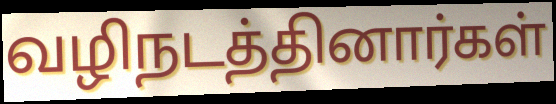
வழிநடத்தினார்கள்